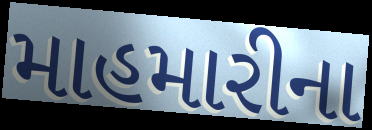
માહમારીના